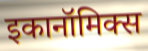
इकानॉमिक्स